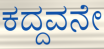
ಕದ್ದವನೇ